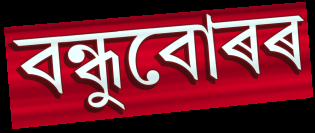
বন্ধুবোৰৰ